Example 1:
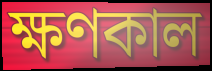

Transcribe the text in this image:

ক্ষণকাল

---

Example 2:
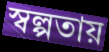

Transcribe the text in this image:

স্বল্পতায়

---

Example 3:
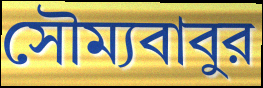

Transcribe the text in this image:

সৌম্যবাবুর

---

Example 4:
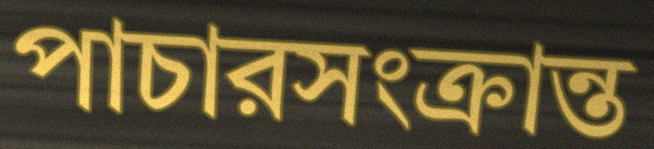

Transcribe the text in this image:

পাচারসংক্রান্ত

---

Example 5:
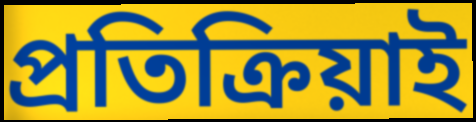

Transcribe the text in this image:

প্রতিক্রিয়াই